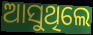
ଆସୁଥିଲେ